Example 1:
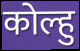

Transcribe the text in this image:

कोल्हु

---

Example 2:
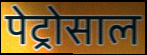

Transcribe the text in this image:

पेट्रोसाल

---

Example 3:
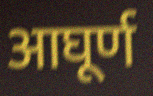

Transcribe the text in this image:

आघूर्ण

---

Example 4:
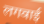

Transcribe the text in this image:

लगवाई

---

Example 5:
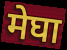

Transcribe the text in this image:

मेघा